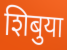
शिबुया